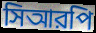
সিআরপি